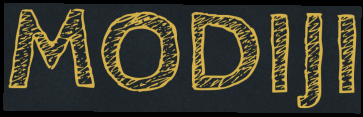
MODIJI